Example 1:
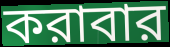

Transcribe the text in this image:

করাবার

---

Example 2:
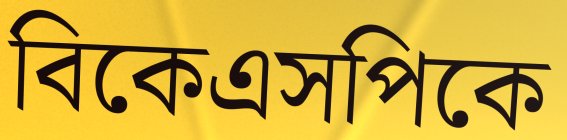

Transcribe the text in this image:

বিকেএসপিকে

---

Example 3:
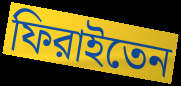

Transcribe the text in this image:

ফিরাইতেন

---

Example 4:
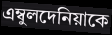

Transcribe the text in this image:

এম্বুলদেনিয়াকে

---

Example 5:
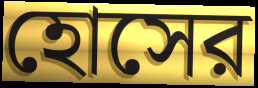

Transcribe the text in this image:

হোসের